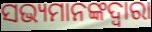
ସଭ୍ୟମାନଙ୍କଦ୍ୱାରା